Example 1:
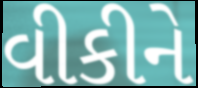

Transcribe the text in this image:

વીકીને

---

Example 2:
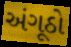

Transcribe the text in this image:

અંગૂઠો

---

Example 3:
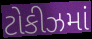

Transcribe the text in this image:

ટોકીઝમાં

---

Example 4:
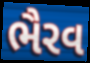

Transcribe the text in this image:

ભૈરવ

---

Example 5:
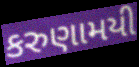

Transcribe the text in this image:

કરુણામયી